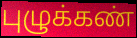
புழுக்கண்